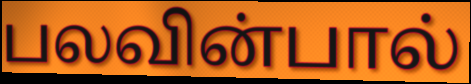
பலவின்பால்